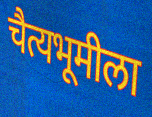
चैत्यभूमीला